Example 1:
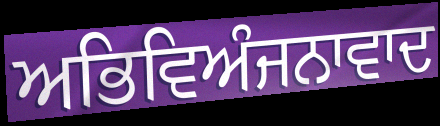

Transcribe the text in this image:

ਅਭਿਵਿਅੰਜਨਾਵਾਦ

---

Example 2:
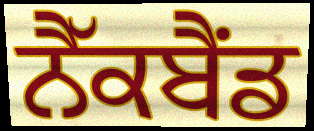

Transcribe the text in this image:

ਨੈੱਕਬੈਂਡ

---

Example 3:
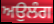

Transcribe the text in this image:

ਅਉਲੰਗ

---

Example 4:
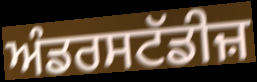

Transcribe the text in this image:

ਅੰਡਰਸਟੱਡੀਜ਼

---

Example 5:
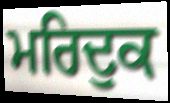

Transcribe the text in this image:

ਮਰਿਦੁਕ